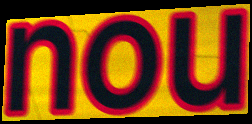
nou